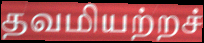
தவமியற்றச்